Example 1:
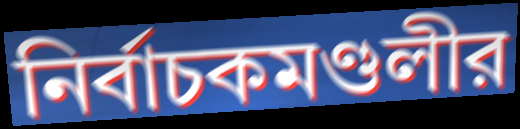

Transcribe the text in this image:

নির্বাচকমণ্ডলীর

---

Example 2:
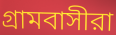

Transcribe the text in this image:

গ্রামবাসীরা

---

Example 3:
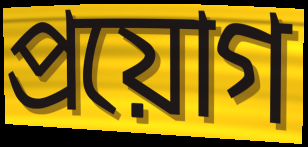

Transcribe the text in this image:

প্রয়োগ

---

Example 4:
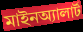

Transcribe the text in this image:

মাইনঅ্যালার্ট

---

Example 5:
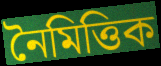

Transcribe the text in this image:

নৈমিত্তিক